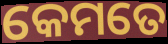
କେମତେ